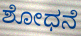
ಶೋಧನೆ